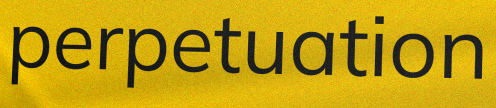
perpetuation